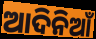
ଆଦିନିଆଁ